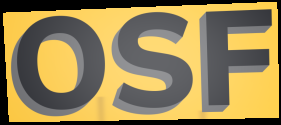
OSF